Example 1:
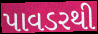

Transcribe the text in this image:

પાવડરથી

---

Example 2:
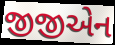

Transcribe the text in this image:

જીજીએન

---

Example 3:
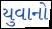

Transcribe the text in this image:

યુવાનો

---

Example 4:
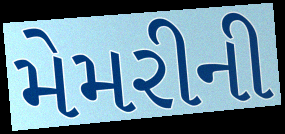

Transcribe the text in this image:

મેમરીની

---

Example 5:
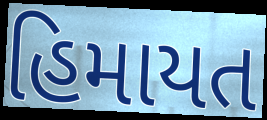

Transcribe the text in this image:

હિમાયત